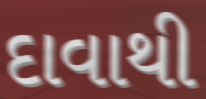
દાવાથી